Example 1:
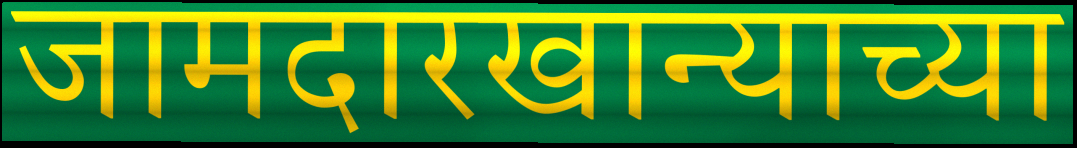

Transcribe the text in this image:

जामदारखान्याच्या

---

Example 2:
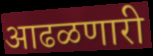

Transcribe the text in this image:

आढळणारी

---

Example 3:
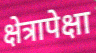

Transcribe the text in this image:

क्षेत्रापेक्षा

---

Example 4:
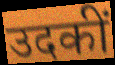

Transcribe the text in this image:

उदकीं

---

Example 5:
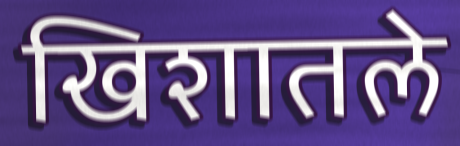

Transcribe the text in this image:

खिशातले